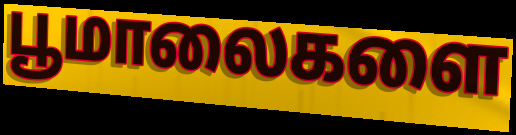
பூமாலைகளை